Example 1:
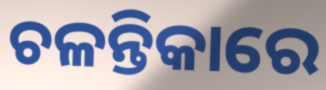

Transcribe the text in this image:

ଚଳନ୍ତିକାରେ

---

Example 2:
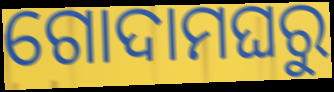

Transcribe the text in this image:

ଗୋଦାମଘରୁ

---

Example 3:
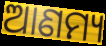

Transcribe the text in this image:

ଆଣମ୍ୟ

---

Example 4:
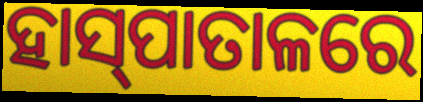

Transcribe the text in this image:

ହାସ୍‍ପାତାଳରେ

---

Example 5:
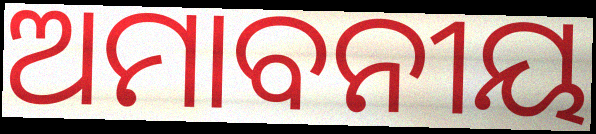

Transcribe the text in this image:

ଅମାବନୀୟ